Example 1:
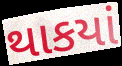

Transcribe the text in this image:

થાકયાં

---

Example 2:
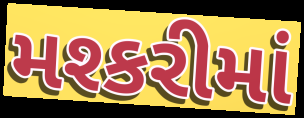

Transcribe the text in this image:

મશ્કરીમાં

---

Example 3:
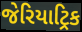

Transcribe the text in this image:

જેરિયાટ્રિક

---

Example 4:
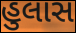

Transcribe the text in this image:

હુલાસ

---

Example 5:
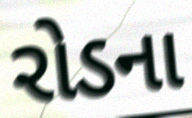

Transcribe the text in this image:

રોડના